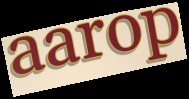
aarop